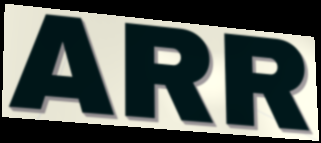
ARR